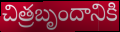
చిత్రబృందానికి